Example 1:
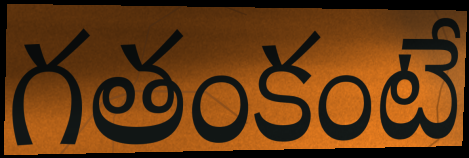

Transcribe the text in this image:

గతంకంటే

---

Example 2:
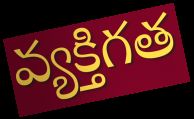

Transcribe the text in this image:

వ్యక్తిగత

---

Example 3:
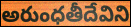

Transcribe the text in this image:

అరుంధతీదేవిని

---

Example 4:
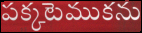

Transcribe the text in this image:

పక్కటెముకను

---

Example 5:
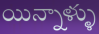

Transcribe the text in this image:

యిన్నాళ్ళు